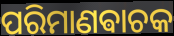
ପରିମାଣଵାଚକ